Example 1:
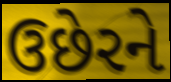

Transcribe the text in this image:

ઉછેરને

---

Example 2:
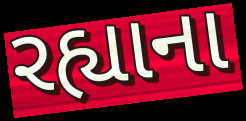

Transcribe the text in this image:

રહ્યાના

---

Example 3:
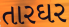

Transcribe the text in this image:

તારઘર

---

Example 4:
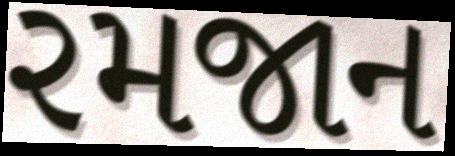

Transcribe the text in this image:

રમજાન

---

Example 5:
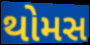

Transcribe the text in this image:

થોમસ